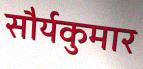
सौर्यकुमार